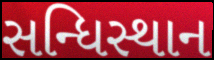
સન્ધિસ્થાન